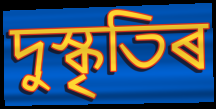
দুস্কৃতিৰ